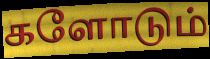
களோடும்